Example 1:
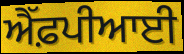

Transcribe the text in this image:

ਐੱਫ਼ਪੀਆਈ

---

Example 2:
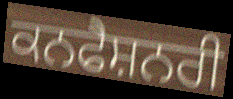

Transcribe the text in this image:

ਕਨਫੈਸ਼ਨਰੀ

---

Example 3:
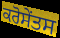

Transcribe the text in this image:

ਕਰੋਸੇਂਤਸ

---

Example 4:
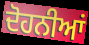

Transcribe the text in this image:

ਦੋਹਨੀਆਂ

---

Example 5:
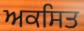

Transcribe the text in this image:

ਅਕਸਿਤ